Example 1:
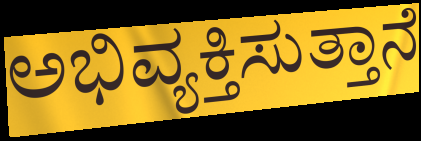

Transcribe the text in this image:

ಅಭಿವ್ಯಕ್ತಿಸುತ್ತಾನೆ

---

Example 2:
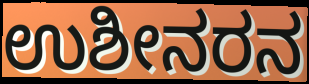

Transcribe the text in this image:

ಉಶೀನರನ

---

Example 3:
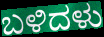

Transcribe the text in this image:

ಬಳಿದಳು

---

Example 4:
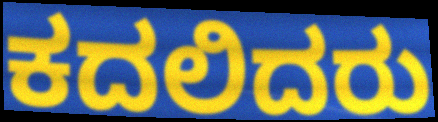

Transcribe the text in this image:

ಕದಲಿದರು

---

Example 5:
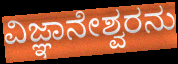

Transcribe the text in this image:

ವಿಜ್ಞಾನೇಶ್ವರನು